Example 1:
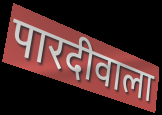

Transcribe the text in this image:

पारदीवाला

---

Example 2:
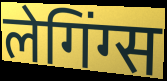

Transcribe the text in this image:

लेगिंग्स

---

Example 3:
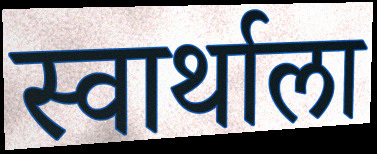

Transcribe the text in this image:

स्वार्थाला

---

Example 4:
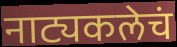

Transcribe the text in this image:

नाट्यकलेचं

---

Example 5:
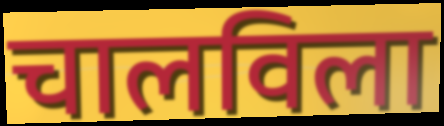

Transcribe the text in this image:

चालविला